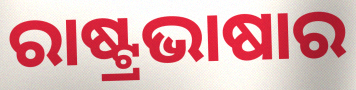
ରାଷ୍ଟ୍ରଭାଷାର